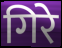
गिरे